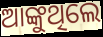
ଆଙ୍କୁଥିଲେ